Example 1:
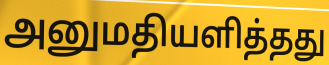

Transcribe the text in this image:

அனுமதியளித்தது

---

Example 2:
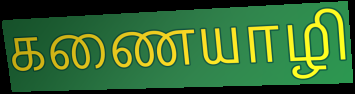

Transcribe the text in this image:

கணையாழி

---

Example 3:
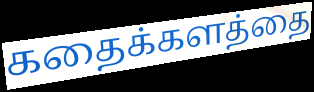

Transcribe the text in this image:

கதைக்களத்தை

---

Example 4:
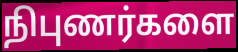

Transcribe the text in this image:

நிபுணர்களை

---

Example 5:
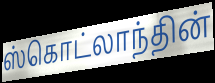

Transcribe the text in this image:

ஸ்கொட்லாந்தின்